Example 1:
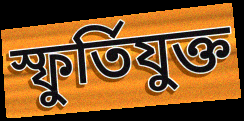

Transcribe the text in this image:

স্ফুর্তিযুক্ত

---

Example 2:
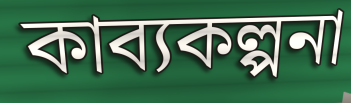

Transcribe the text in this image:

কাব্যকল্পনা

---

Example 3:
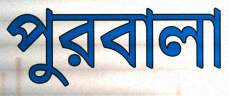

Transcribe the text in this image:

পুরবালা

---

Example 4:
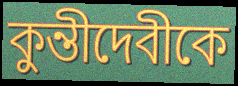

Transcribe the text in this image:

কুন্তীদেবীকে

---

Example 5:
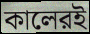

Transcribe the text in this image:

কালেরই